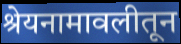
श्रेयनामावलीतून